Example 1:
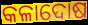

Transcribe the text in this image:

କଳାଦୋଷ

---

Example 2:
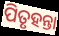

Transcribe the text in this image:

ପିତୃହନ୍ତା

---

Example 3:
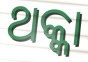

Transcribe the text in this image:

ଥକ୍କା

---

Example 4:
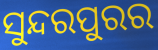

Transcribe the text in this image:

ସୁନ୍ଦରପୁରର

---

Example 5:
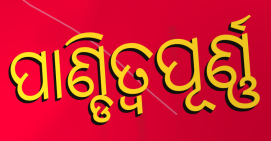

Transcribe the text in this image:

ପାଣ୍ଡିତ୍ୱପୂର୍ଣ୍ଣ